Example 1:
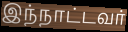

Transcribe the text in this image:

இந்நாட்டவர்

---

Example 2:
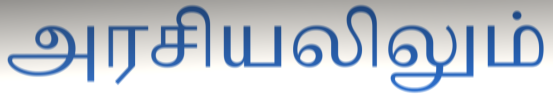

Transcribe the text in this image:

அரசியலிலும்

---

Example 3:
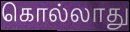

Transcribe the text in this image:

கொல்லாது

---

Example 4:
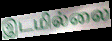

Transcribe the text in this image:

இடமில்லை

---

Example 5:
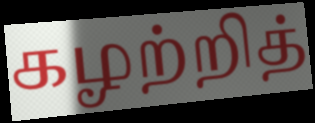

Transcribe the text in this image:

கழற்றித்